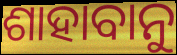
ଶାହାବାନୁ